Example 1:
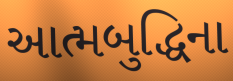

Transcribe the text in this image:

આત્મબુદ્ધિના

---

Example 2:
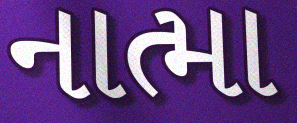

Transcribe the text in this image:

નાત્મા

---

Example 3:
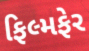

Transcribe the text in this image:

ફિલ્મફેર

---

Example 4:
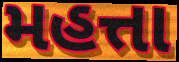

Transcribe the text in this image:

મહત્તા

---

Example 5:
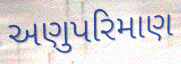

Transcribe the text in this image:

અણુપરિમાણ